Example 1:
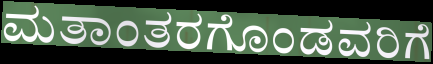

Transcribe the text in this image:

ಮತಾಂತರಗೊಂಡವರಿಗೆ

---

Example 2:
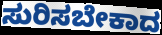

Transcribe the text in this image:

ಸುರಿಸಬೇಕಾದ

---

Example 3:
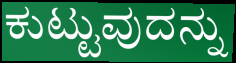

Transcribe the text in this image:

ಕುಟ್ಟುವುದನ್ನು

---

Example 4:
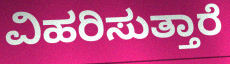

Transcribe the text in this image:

ವಿಹರಿಸುತ್ತಾರೆ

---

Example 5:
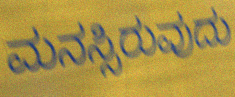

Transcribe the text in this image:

ಮನಸ್ಸಿರುವುದು